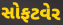
સોફટવેર